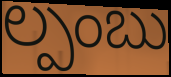
ల్పంబు